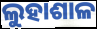
ଲୁହାଶାଳ